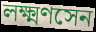
লক্ষ্মণসেন